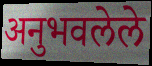
अनुभवलेले